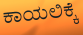
ಕಾಯಲಿಕ್ಕೆ